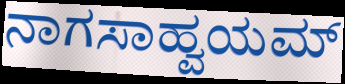
ನಾಗಸಾಹ್ವಯಮ್